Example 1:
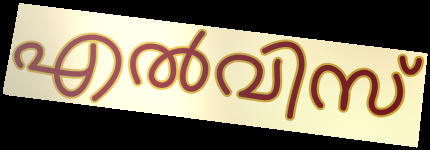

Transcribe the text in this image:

എൽവിസ്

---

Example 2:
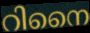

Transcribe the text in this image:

റിനൈ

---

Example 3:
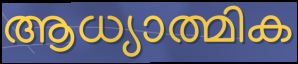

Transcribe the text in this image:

ആധ്യാത്മിക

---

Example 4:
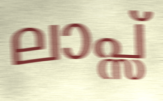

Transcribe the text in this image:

ലാപ്സ്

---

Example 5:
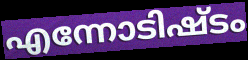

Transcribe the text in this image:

എന്നോടിഷ്ടം